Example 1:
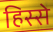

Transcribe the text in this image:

हिस्‍से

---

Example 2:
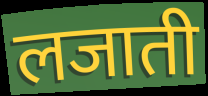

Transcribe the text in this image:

लजाती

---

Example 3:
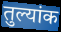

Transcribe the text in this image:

तुल्यांक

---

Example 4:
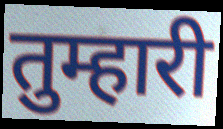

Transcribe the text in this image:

तुम्हारी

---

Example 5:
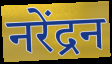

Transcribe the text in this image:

नरेंद्रन